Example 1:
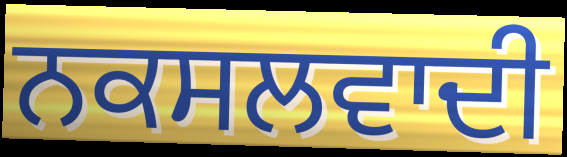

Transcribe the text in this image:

ਨਕਸਲਵਾਦੀ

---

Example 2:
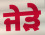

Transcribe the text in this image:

ਜੇੜੇ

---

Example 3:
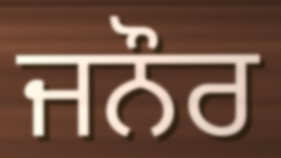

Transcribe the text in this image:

ਜਨੌਰ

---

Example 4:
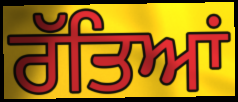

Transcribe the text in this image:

ਰੱਤਿਆਂ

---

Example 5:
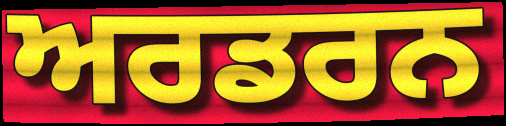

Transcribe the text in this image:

ਅਰਡਰਨ